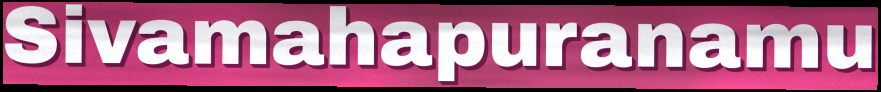
Sivamahapuranamu